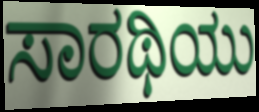
ಸಾರಥಿಯು